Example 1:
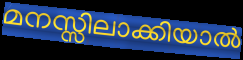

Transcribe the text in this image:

മനസ്സിലാക്കിയാൽ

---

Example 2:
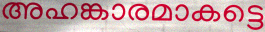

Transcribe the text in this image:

അഹങ്കാരമാകട്ടെ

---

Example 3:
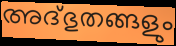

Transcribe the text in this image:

അദ്ഭുതങ്ങളും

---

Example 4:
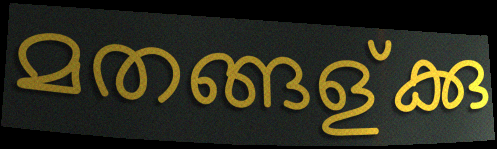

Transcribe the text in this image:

മതങ്ങള്ക്കു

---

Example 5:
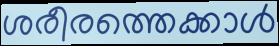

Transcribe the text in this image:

ശരീരത്തെക്കാൾ